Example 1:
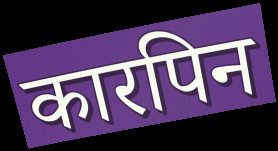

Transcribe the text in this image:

कारपिन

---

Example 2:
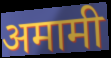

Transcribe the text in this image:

अमामी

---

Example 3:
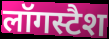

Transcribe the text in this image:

लॉगस्टैश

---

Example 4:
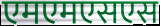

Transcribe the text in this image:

एमएमएसएस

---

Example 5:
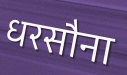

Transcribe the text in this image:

धरसौना